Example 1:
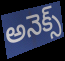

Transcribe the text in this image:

అనెక్స్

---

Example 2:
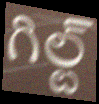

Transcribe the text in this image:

గిల్ట్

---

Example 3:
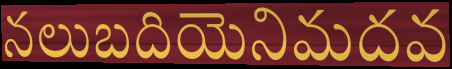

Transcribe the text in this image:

నలుబదియెనిమదవ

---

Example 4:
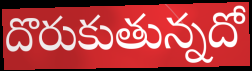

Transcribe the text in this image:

దొరుకుతున్నదో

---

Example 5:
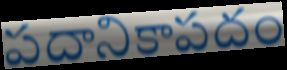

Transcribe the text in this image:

పదానికాపదం